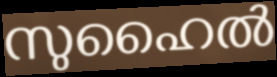
സുഹൈൽ